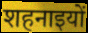
शहनाइयों